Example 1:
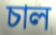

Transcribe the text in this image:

চাল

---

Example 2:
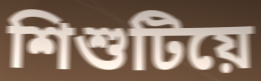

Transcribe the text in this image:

শিশুটিয়ে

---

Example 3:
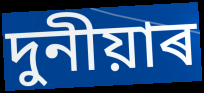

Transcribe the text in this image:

দুনীয়াৰ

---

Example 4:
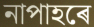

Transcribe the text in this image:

নাপাহৰে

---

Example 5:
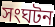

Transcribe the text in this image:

সংঘটন